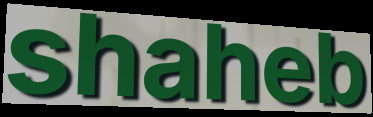
shaheb